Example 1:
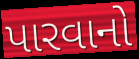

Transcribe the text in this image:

પારવાનો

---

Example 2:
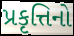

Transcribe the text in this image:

પ્રકૃત્તિનો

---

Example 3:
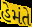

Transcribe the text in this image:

હેમંતે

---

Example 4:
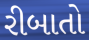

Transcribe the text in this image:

રીબાતો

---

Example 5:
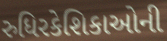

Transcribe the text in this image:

રુધિરકેશિકાઓની